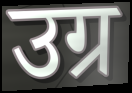
उग्र